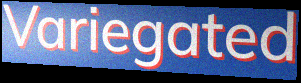
Variegated